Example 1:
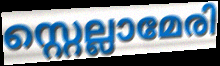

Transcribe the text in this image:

സ്റ്റെല്ലാമേരി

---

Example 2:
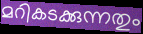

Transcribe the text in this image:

മറികടക്കുന്നതും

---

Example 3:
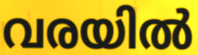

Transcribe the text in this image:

വരയിൽ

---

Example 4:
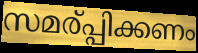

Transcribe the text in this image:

സമര്പ്പിക്കണം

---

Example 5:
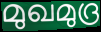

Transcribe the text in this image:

മുഖമുദ്ര